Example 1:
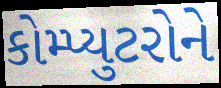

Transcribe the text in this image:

કોમ્પ્યુટરોને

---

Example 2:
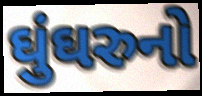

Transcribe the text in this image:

ઘુંઘરુનો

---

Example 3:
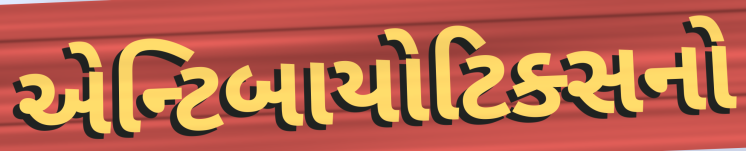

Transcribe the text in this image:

એન્ટિબાયોટિક્સનો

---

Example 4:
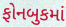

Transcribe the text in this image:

ફોનબુકમાં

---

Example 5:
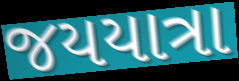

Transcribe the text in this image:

જયયાત્રા